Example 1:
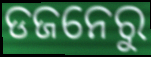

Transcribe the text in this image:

ଡଜନେରୁ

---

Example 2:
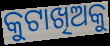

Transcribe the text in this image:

କୁଟାଖିଅକୁ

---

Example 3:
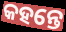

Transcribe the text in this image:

କହନ୍ତେ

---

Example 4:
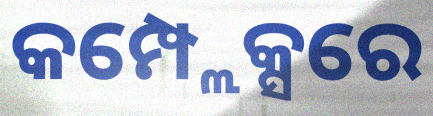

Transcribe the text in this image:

କମ୍ପ୍ଲେକ୍ସରେ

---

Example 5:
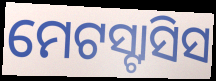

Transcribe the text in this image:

ମେଟସ୍ଟାସିସ